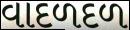
વાદળદળ